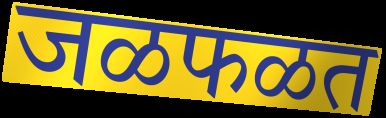
जळफळत